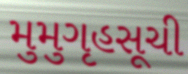
મુમુગૃહસૂચી